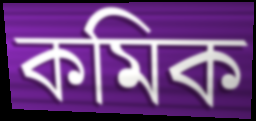
কমিক